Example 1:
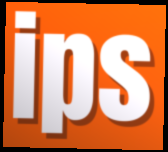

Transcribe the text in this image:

ips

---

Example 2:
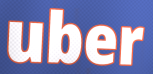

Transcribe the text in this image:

uber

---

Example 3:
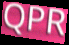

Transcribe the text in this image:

QPR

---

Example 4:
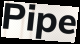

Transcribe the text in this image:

Pipe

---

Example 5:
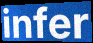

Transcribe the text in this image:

infer